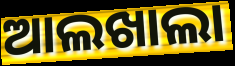
ଆଲଖାଲା